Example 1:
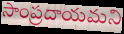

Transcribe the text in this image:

సాంప్రదాయమని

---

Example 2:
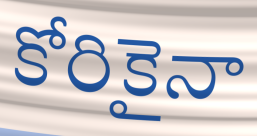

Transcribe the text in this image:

కోరికైనా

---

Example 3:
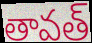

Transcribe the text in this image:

తావత్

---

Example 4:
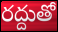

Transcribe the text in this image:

రద్దుతో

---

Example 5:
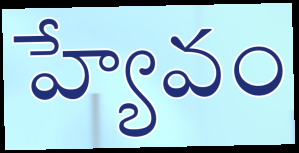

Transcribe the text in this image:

హ్యేవం